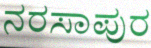
ನರಸಾಪುರ